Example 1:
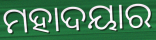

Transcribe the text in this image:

ମହାଦୟାର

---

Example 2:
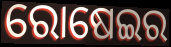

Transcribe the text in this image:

ରୋଷେଇର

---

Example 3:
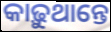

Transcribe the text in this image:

କାଢ଼ୁଥାନ୍ତେ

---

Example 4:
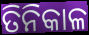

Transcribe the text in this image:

ତିନିକାଳ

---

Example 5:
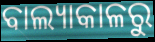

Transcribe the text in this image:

ବାଲ୍ୟାକାଳରୁ